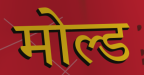
मोल्ड